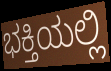
ಭಕ್ತಿಯಲ್ಲಿ